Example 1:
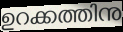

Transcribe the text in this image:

ഉറക്കത്തിനു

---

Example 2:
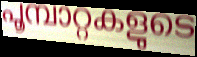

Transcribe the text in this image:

പൂമ്പാറ്റകളുടെ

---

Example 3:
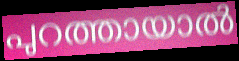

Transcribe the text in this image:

പുറത്തായാൽ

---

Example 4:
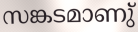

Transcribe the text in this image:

സങ്കടമാണു്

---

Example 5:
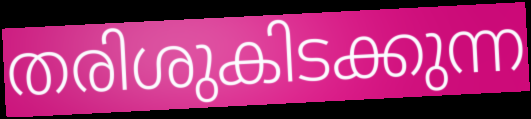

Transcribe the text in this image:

തരിശുകിടക്കുന്ന